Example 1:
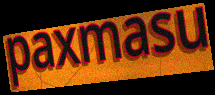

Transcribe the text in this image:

paxmasu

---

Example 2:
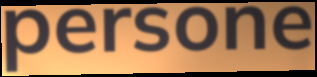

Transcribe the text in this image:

persone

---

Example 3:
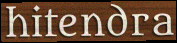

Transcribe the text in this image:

hitendra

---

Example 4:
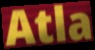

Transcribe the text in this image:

Atla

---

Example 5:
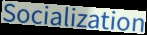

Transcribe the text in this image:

Socialization